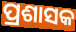
ପ୍ରଶାସକ